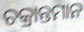
ଚକ୍ରାନ୍ତମାନ